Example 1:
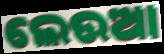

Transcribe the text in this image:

ଲେଉଆ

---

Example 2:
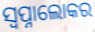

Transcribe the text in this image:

ସ୍ୱପ୍ନାଲୋକର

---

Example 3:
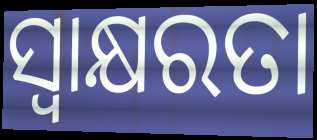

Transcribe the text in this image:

ସ୍ବାକ୍ଷରତା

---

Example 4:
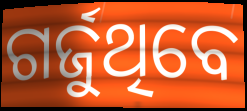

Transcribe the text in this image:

ଗର୍ଜୁଥିବେ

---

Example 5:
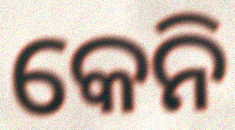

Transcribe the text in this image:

କେନି